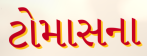
ટોમાસના